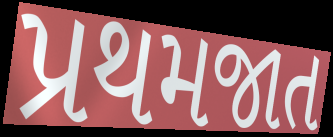
પ્રથમજાત